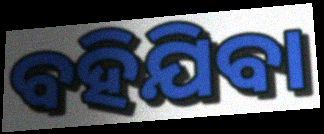
ବହିଯିବା